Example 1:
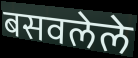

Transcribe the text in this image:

बसवलेले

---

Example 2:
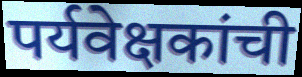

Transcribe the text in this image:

पर्यवेक्षकांची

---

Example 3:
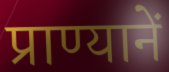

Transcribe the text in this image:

प्राण्यानें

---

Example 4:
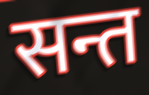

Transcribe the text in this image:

सन्त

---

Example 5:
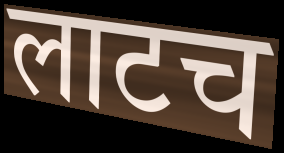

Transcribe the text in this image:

लाटच